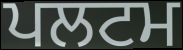
ਪਲਟਮ